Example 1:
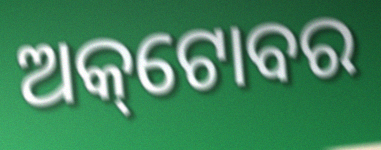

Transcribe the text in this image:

ଅକ୍‌ଟୋବର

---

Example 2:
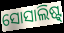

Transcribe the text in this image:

ସୋସାଲିଷ୍ଟ୍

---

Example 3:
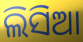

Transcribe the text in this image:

ଲିସିଆ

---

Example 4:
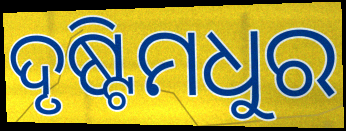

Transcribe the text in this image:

ଦୃଷ୍ଟିମଧୁର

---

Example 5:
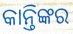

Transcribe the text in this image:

କାନ୍ତିଙ୍କର